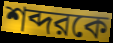
শব্দরকে